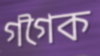
গগৈক